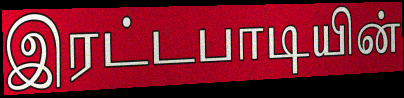
இரட்டபாடியின்